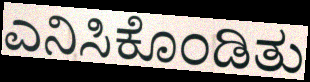
ಎನಿಸಿಕೊಂಡಿತು